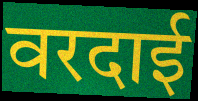
वरदाई